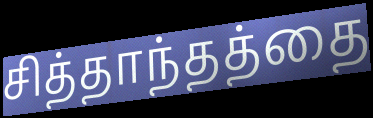
சித்தாந்தத்தை